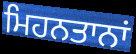
ਮਿਹਨਤਾਨਾਂ